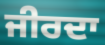
ਜੀਰਦਾ